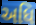
અધિ